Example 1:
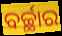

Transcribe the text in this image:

ବର୍ଚ୍ଛାର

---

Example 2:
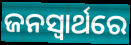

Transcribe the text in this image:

ଜନସ୍ୱାର୍ଥରେ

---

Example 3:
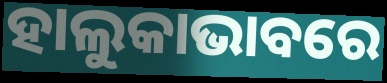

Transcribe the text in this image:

ହାଲୁକାଭାବରେ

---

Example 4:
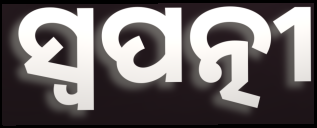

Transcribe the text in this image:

ସ୍ୱପତ୍ନୀ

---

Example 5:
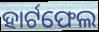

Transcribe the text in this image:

ହାର୍ଟଫେଲ